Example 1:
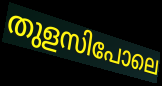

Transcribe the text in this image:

തുളസിപോലെ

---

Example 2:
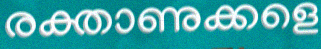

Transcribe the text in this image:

രക്താണുക്കളെ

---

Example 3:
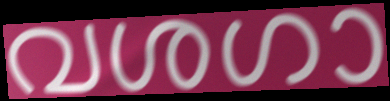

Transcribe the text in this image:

വശഗാ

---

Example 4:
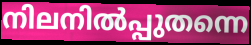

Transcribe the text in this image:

നിലനിൽപ്പുതന്നെ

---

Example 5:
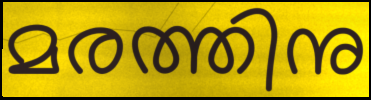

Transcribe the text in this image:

മരത്തിനു